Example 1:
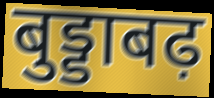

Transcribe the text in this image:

बुड्डाबढ़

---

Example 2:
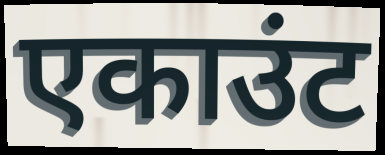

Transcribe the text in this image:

एकाउंट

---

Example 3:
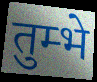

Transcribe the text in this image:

तुम्भे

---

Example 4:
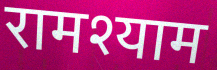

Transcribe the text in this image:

रामश्याम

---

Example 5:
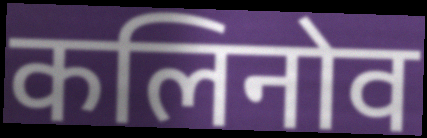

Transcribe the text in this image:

कलिनोव